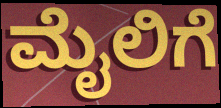
ಮೈಲಿಗೆ